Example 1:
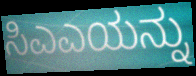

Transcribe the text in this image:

ಸಿಎಎಯನ್ನು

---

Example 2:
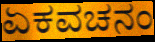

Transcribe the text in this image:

ಏಕವಚನಂ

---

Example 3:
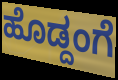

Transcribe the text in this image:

ಹೊಡ್ದಂಗೆ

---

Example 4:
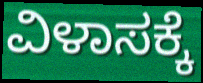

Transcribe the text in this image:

ವಿಳಾಸಕ್ಕೆ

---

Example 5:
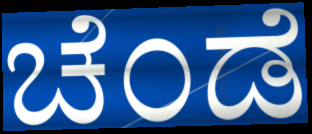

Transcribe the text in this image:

ಚೆಂಡೆ